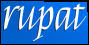
rupat